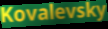
Kovalevsky